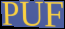
PUF